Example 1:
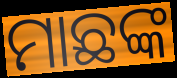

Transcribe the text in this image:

ମାଛଙ୍କ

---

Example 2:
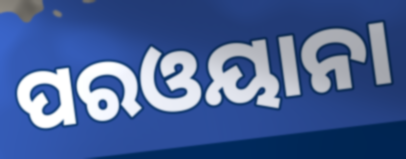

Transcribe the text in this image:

ପରଓୟାନା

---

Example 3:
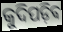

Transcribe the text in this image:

କୁଦିପଡ଼ିବ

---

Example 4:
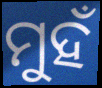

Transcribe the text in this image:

ମୁହଁ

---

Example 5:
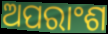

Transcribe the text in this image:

ଅପରାଂଶ